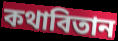
কথাবিতান